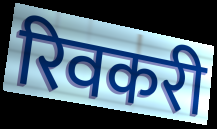
रिवकरी